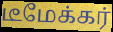
டீமேக்கர்